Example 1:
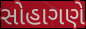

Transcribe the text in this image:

સોહાગણે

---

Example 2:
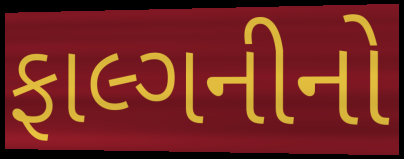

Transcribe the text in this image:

ફાલ્ગનીનો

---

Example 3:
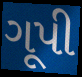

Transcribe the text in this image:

ગૂપી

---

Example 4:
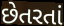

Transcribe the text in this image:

છેતરતાં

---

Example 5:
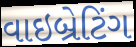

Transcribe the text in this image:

વાઇબ્રેટિંગ